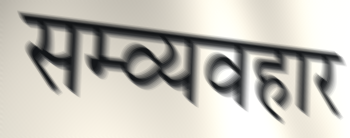
सम्व्यवहार